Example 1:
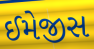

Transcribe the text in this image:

ઈમેજીસ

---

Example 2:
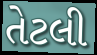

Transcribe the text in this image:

તેટલી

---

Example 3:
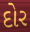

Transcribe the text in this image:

દોર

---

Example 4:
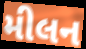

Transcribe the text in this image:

મીલન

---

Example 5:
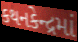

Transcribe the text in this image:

કથનકેન્દ્રમાં